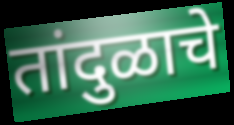
तांदुळाचे